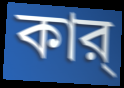
কার্